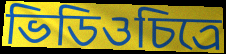
ভিডিওচিত্রে